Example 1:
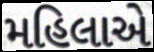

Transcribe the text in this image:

મહિલાએ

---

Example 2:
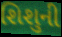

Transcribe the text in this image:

શિશુની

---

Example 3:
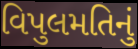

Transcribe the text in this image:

વિપુલમતિનું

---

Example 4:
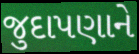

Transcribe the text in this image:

જુદાપણાને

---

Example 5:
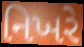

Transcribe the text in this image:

નિખરે